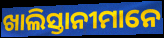
ଖାଲିସ୍ତାନୀମାନେ